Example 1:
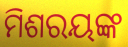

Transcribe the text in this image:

ମିଶରୟଙ୍କ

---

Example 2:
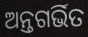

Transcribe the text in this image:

ଅନ୍ତଗର୍ଭିତ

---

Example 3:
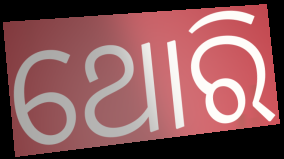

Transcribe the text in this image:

ଥୋରି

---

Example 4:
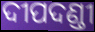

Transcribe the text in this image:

ଦୀପଦଣ୍ଡୀ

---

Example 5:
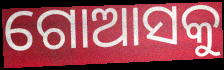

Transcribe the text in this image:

ଗୋଆସକୁ